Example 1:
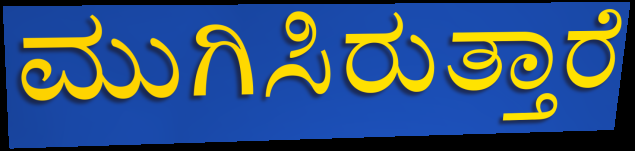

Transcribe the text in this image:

ಮುಗಿಸಿರುತ್ತಾರೆ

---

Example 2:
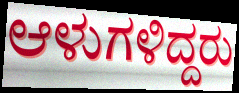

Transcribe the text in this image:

ಆಳುಗಳಿದ್ದರು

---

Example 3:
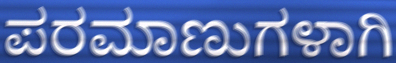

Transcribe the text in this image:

ಪರಮಾಣುಗಳಾಗಿ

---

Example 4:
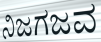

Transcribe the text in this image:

ನಿಜಗಜವ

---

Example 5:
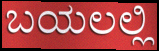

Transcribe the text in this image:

ಬಯಲಲ್ಲಿ